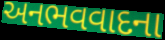
અનભવવાદના